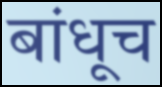
बांधूच